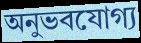
অনুভবযোগ্য